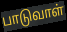
பாடுவாள்